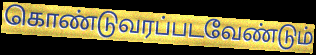
கொண்டுவரப்படவேண்டும்